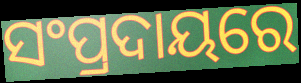
ସଂପ୍ରଦାୟରେ